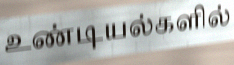
உண்டியல்களில்